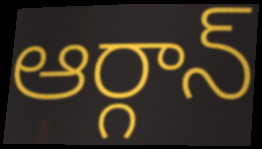
ఆర్గాన్